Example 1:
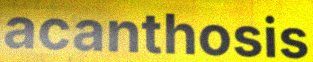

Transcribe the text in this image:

acanthosis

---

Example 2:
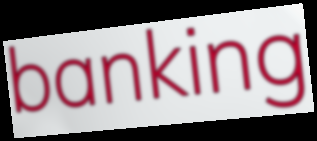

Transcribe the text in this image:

banking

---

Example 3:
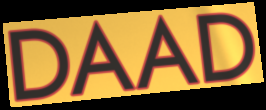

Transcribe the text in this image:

DAAD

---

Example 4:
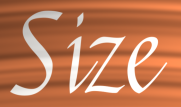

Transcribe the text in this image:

Size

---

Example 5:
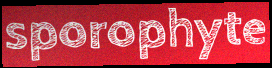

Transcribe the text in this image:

sporophyte